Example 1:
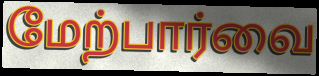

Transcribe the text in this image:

மேற்பார்வை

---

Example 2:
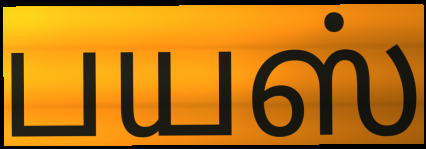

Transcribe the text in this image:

பயஸ்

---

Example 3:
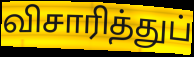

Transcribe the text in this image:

விசாரித்துப்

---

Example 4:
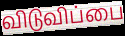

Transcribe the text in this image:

விடுவிப்பை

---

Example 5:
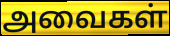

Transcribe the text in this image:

அவைகள்